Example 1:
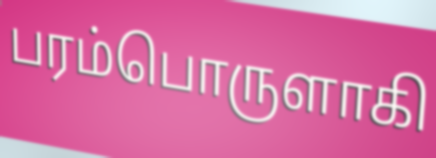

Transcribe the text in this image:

பரம்பொருளாகி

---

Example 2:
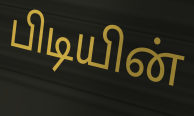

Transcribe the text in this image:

பிடியின்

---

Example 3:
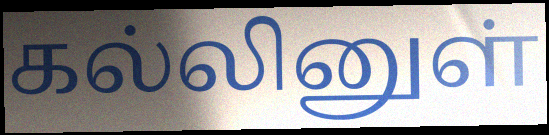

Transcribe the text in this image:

கல்லினுள்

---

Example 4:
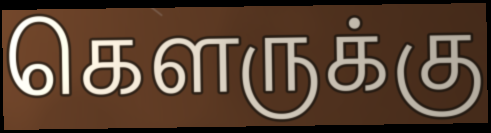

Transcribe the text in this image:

கௌருக்கு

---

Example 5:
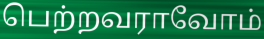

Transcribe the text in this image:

பெற்றவராவோம்